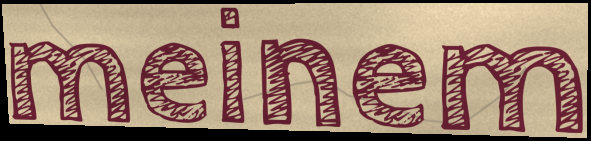
meinem